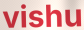
vishu